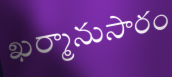
ఖర్మానుసారం